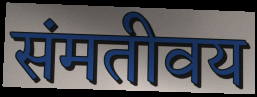
संमतीवय